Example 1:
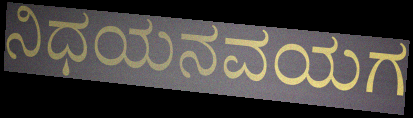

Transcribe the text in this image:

ನಿಧಯನವಯಗ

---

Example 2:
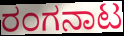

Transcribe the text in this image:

ರಂಗನಾಟ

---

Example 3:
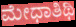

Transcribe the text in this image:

ಮೇಧಾತಿಥಿ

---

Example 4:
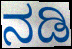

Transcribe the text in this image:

ನಡಿ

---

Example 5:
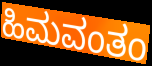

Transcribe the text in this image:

ಹಿಮವಂತಂ